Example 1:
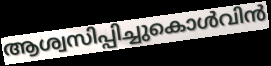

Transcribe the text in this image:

ആശ്വസിപ്പിച്ചുകൊൾവിൻ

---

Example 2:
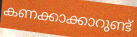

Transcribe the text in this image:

കണക്കാക്കാറുണ്ട്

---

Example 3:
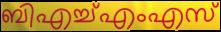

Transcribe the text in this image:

ബിഎച്ച്എംഎസ്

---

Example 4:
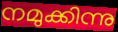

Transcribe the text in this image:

നമുക്കിന്നു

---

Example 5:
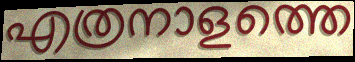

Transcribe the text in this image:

എത്രനാളത്തെ